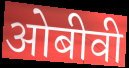
ओबीवी